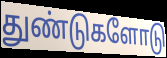
துண்டுகளோடு